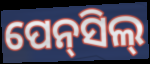
ପେନ୍‌ସିଲ୍